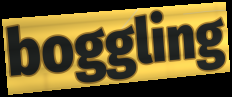
boggling